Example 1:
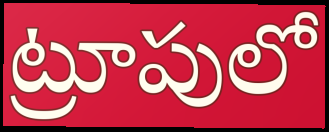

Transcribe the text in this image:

ట్రూపులో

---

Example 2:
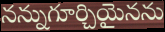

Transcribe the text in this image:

నన్నుగూర్చియైనను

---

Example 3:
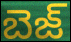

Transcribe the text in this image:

బెజ్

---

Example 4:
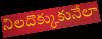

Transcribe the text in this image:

నిలదొక్కుకునేలా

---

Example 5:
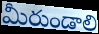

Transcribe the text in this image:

మీరుండాలి